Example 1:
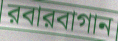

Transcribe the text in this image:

রবারবাগান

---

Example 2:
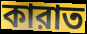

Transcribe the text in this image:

কারাত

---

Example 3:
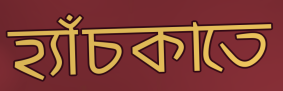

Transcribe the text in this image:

হ্যাঁচকাতে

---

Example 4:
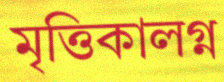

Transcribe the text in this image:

মৃত্তিকালগ্ন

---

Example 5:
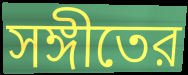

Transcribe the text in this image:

সঙ্গীতের